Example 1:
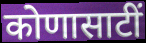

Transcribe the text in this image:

कोणासाटीं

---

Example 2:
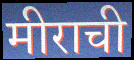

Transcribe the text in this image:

मीराची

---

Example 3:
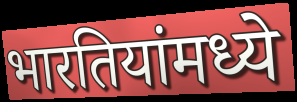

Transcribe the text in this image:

भारतियांमध्ये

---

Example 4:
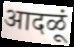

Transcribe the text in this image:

आदळूं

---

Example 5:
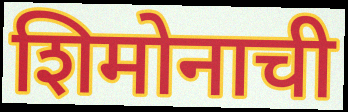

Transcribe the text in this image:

शिमोनाची